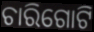
ଚାରିଗୋଟି